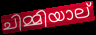
ചിമ്മിയാല്